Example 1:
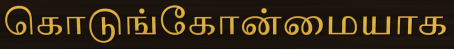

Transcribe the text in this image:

கொடுங்கோன்மையாக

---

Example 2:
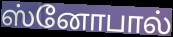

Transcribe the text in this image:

ஸ்னோபால்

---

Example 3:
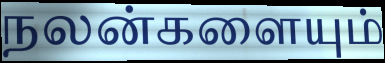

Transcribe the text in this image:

நலன்களையும்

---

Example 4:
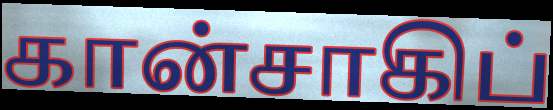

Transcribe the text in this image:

கான்சாகிப்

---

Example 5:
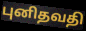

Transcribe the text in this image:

புனிதவதி